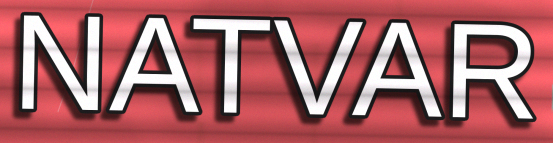
NATVAR